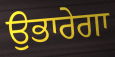
ਉਭਾਰੇਗਾ